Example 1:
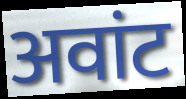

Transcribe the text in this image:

अवांट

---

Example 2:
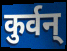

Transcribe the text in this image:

कुर्वन्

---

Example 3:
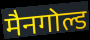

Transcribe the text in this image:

मैनगोल्ड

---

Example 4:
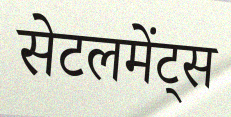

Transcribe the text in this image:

सेटलमेंट्स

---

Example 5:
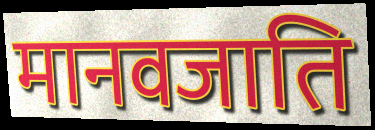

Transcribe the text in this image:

मानवजाति